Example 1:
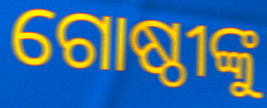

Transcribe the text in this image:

ଗୋଷ୍ଠୀଙ୍କୁ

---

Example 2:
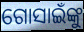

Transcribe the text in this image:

ଗୋସାଇଁଙ୍କୁ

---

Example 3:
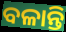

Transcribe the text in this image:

ବଳାନ୍ତି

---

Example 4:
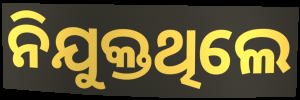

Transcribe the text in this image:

ନିଯୁକ୍ତଥିଲେ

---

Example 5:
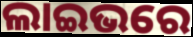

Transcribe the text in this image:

ଲାଇଭରେ